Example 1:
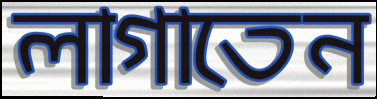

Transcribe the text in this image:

লাগাতেন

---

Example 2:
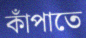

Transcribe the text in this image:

কাঁপাতে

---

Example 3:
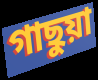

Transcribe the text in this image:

গাছুয়া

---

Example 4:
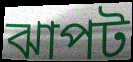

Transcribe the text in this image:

ঝাপট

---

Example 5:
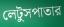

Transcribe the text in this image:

লেটুসপাতার